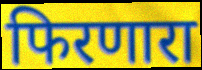
फिरणारा